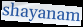
shayanam